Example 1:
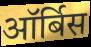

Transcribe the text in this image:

ऑर्बिस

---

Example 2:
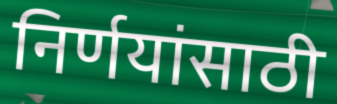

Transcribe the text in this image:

निर्णयांसाठी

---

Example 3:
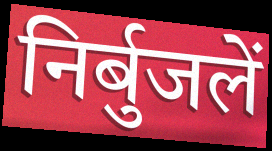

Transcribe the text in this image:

निर्बुजलें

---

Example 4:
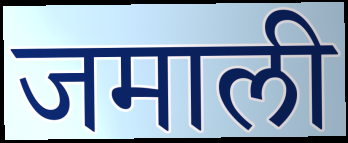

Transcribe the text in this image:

जमाली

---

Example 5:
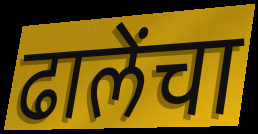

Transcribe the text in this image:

ढालेंचा